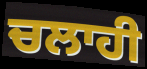
ਚਲਾਹੀ